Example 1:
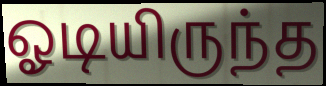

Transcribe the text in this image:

ஓடியிருந்த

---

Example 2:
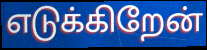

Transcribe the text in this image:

எடுக்கிறேன்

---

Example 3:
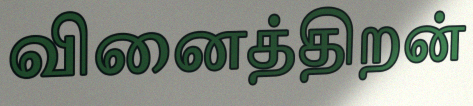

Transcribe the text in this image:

வினைத்திறன்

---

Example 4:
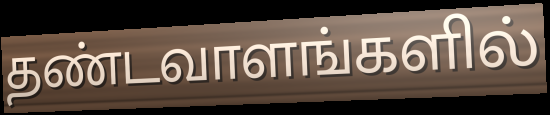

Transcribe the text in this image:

தண்டவாளங்களில்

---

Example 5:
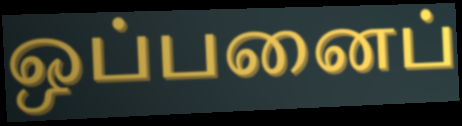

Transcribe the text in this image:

ஒப்பனைப்